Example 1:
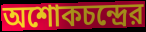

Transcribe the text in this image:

অশোকচন্দ্রের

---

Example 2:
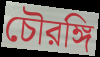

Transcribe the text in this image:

চৌরঙ্গি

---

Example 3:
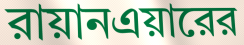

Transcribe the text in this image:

রায়ানএয়ারের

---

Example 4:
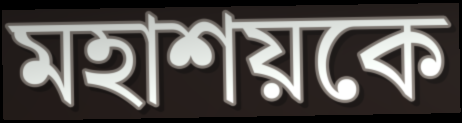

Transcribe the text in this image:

মহাশয়কে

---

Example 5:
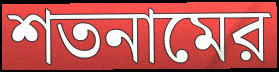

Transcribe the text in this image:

শতনামের